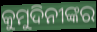
କୁମୁଦିନୀଙ୍କର